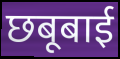
छबूबाई